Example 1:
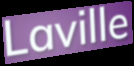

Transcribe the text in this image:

Laville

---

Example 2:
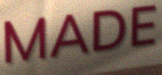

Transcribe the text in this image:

MADE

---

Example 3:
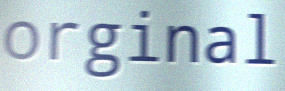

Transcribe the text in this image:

orginal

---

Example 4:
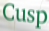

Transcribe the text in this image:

Cusp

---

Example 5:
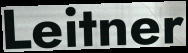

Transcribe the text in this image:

Leitner